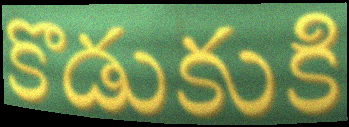
కొడుకుకి